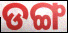
ଡଙ୍ଗ